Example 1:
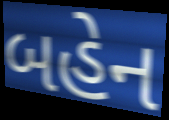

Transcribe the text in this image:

બહેન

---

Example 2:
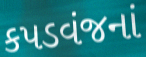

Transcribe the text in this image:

કપડવંજનાં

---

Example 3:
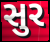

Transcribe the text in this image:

સુર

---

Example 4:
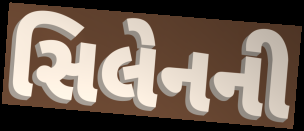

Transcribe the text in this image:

સિલેનની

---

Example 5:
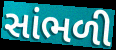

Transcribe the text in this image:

સાંભળી